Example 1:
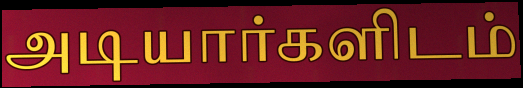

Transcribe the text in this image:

அடியார்களிடம்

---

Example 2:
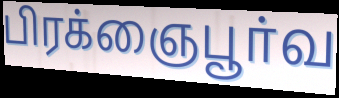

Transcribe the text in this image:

பிரக்ஞைபூர்வ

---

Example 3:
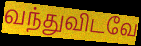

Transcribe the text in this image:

வந்துவிடவே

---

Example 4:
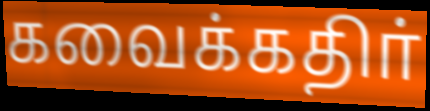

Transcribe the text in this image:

கவைக்கதிர்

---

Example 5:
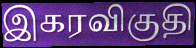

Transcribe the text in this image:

இகரவிகுதி